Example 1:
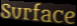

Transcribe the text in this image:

Surface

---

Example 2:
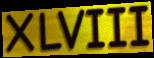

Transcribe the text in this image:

XLVIII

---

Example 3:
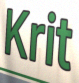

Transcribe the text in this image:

Krit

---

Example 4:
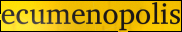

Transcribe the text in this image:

ecumenopolis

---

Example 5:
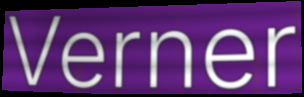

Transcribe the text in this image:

Verner